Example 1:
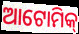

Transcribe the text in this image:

ଆଟୋମିକ୍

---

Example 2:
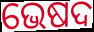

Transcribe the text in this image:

ଭେଷଦ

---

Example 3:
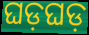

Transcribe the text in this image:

ଘଡ଼ଘଡ଼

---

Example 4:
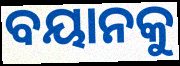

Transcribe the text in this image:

ବୟାନକୁ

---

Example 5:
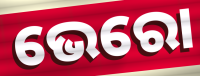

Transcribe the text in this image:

ଭେରୋ